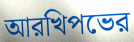
আরখিপভের